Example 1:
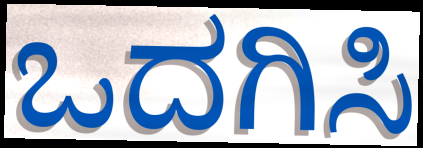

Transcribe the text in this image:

ಒದಗಿಸಿ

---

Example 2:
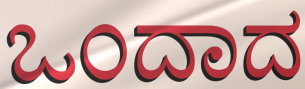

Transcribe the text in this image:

ಒಂದಾದ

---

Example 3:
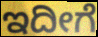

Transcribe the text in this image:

ಇದೀಗೆ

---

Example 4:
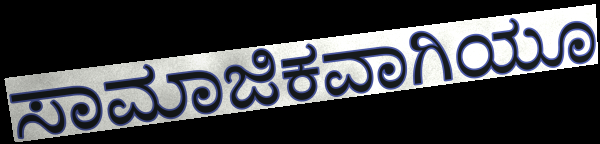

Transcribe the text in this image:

ಸಾಮಾಜಿಕವಾಗಿಯೂ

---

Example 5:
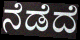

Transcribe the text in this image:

ನೆಡೆದೆ